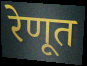
रेणूत